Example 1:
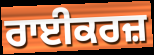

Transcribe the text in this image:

ਰਾਈਕਰਜ਼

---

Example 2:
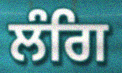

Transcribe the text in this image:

ਲੰਗਿ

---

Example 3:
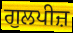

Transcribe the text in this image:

ਗੁਲਪੀਜ਼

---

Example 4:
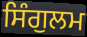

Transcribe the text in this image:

ਸਿੰਗੁਲਮ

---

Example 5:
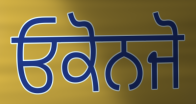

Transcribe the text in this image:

ਓਕੋਨਜੋ